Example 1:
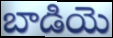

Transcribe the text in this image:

బాడియె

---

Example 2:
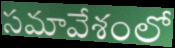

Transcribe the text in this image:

సమావేశంలో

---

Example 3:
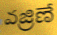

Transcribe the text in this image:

వజ్రిణే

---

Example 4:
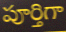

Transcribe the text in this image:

పూర్తిగా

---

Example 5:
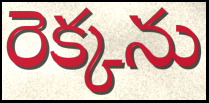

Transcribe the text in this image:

రెక్కను